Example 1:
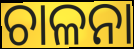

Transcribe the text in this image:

ଚାଳନା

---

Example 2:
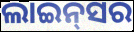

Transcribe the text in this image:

ଲାଇନ୍‌ସର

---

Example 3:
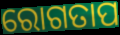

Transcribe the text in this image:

ରୋଗତାପ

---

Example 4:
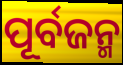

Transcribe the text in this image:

ପୂର୍ବଜନ୍ମ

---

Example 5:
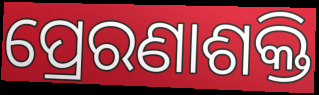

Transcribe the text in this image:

ପ୍ରେରଣାଶକ୍ତି